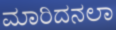
ಮಾರಿದನಲಾ